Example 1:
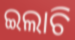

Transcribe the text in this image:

ଇଲାଚି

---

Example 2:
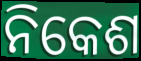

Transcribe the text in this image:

ନିକେଶ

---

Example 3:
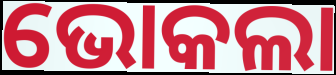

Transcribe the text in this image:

ଭୋକଲା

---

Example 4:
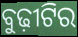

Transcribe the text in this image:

ବୁଢ଼ୀଟିର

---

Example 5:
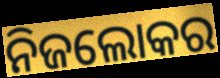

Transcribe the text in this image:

ନିଜଲୋକର